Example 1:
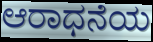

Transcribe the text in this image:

ಆರಾಧನೆಯ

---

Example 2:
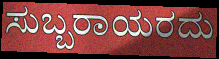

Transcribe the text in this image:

ಸುಬ್ಬರಾಯರದು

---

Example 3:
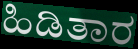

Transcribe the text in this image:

ಹಿಡಿತಾರ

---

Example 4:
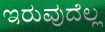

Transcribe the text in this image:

ಇರುವುದೆಲ್ಲ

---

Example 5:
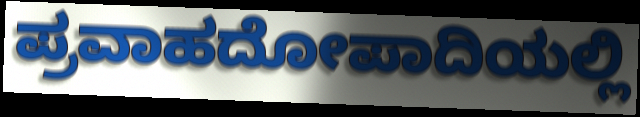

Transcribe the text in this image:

ಪ್ರವಾಹದೋಪಾದಿಯಲ್ಲಿ